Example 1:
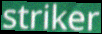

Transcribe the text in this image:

striker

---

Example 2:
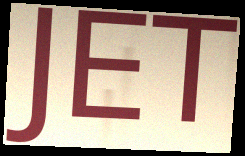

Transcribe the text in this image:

JET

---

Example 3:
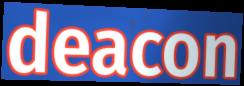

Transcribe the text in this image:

deacon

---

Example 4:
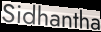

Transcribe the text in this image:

Sidhantha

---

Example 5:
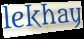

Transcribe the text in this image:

lekhay